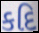
કદિ